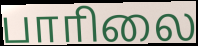
பாரிலை